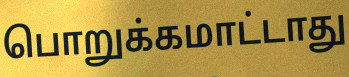
பொறுக்கமாட்டாது